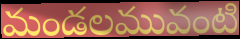
మండలమువంటి